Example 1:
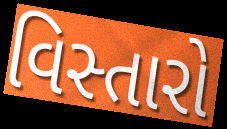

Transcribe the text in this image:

વિસ્તારો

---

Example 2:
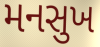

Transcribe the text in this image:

મનસુખ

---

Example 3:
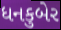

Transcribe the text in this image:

ધનકુબેર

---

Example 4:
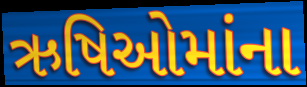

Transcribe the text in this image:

ઋષિઓમાંના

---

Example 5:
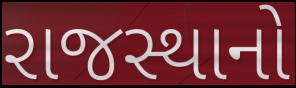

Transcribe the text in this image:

રાજસ્થાનો